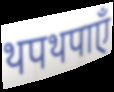
थपथपाएँ